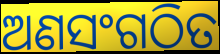
ଅଣସଂଗଠିତ